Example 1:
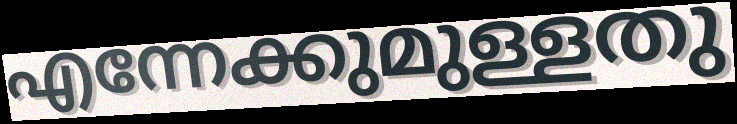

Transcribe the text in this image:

എന്നേക്കുമുള്ളതു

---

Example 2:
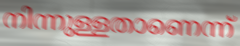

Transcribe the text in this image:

നിന്നുള്ളതാണെന്ന്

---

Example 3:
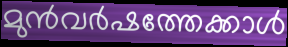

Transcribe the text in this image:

മുൻവർഷത്തേക്കാൾ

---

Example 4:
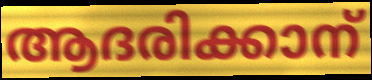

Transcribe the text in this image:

ആദരിക്കാന്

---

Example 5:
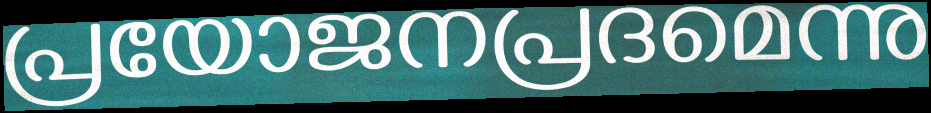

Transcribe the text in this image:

പ്രയോജനപ്രദമെന്നു